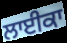
ਲਾਈਕਾ